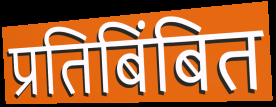
प्रतिबिंबित